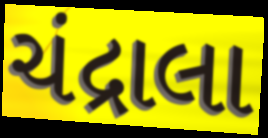
ચંદ્રાલા